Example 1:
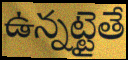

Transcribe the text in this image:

ఉన్నట్టైతే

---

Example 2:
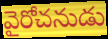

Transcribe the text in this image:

వైరోచనుడు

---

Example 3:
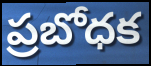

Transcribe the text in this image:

ప్రబోధక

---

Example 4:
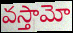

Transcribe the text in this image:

వస్తామో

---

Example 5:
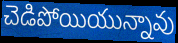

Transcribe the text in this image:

చెడిపోయియున్నావు